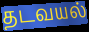
தடவயல்